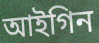
আইগিন